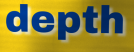
depth